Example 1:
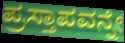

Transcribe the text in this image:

ಪ್ರಸ್ತಾಪವನ್ನೇ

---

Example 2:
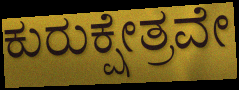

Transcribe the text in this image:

ಕುರುಕ್ಷೇತ್ರವೇ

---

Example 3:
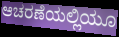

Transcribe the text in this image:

ಆಚರಣೆಯಲ್ಲಿಯೂ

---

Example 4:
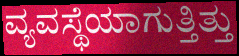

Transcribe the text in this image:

ವ್ಯವಸ್ಥೆಯಾಗುತ್ತಿತ್ತು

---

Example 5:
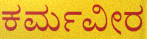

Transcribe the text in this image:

ಕರ್ಮವೀರ